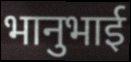
भानुभाई